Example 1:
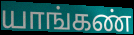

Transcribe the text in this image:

யாங்கண்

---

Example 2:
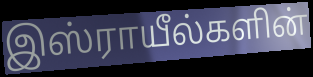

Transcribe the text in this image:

இஸ்ராயீல்களின்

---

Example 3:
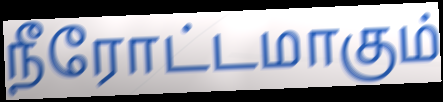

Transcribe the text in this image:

நீரோட்டமாகும்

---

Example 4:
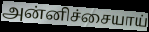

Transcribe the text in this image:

அன்னிச்சையாய்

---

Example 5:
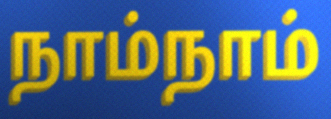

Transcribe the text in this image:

நாம்நாம்